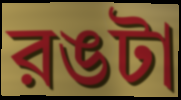
রঙটা